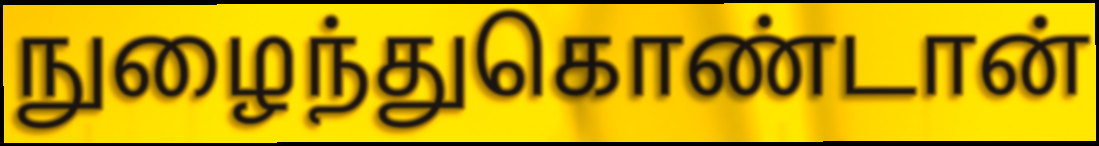
நுழைந்துகொண்டான்